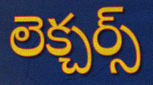
లెక్చర్స్